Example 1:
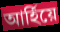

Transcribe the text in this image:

আৰ্হিয়ে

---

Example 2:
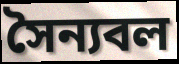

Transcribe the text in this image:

সৈন্যবল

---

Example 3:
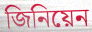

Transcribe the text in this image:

জিনিয়েন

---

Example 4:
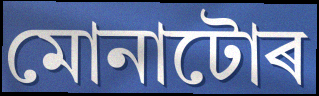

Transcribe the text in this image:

মোনাটোৰ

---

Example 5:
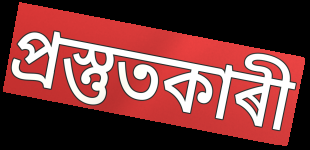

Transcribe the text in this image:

প্ৰস্তুতকাৰী